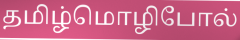
தமிழ்மொழிபோல்